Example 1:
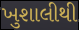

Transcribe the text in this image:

ખુશાલીથી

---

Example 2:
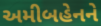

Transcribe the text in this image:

અમીબહેનને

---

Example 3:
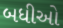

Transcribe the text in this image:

બધીઓ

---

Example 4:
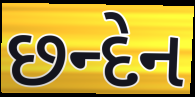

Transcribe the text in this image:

છન્દેન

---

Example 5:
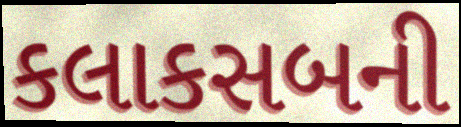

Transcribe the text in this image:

કલાકસબની